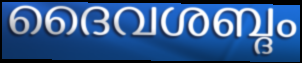
ദൈവശബ്ദം